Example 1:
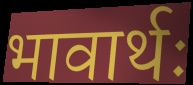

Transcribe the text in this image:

भावार्थः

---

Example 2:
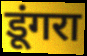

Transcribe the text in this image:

डूंगरा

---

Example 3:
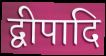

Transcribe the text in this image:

द्वीपादि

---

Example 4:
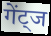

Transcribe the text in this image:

गेंट्ज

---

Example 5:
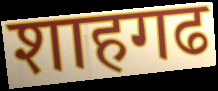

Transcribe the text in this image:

शाहगढ